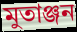
মুতাঞ্জন